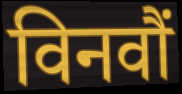
विनवौं